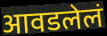
आवडलेलं